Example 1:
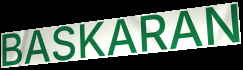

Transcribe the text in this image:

BASKARAN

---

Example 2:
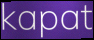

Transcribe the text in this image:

kapat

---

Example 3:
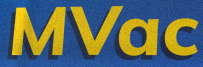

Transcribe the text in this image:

MVac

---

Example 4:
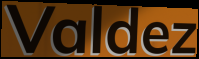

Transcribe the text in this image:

Valdez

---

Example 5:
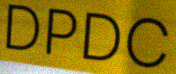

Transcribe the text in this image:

DPDC